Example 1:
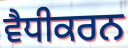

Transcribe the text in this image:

ਵੈਧੀਕਰਨ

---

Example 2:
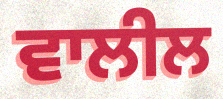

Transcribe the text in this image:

ਵਾਲੀਲ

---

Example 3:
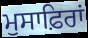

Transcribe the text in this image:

ਮੁਸਾਫ਼ਿਰਾਂ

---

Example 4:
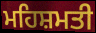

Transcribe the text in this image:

ਮਹਿਸ਼ਮਤੀ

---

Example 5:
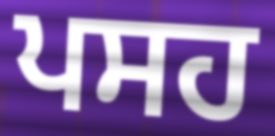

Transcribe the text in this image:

ਪਸਹ